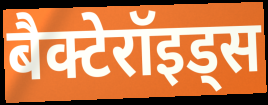
बैक्टेरॉइड्स